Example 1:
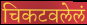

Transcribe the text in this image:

चिकटवलेलं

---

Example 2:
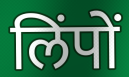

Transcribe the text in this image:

लिंपों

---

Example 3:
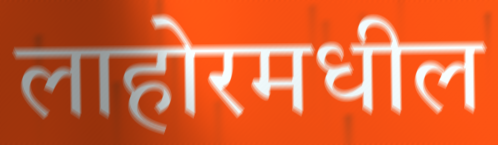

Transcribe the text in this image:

लाहोरमधील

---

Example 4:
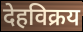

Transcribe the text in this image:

देहविक्रय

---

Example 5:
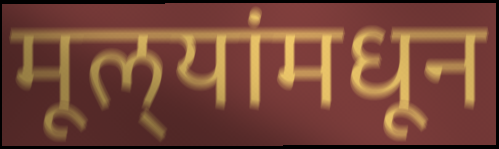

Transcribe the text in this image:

मूल्यांमधून